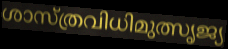
ശാസ്ത്രവിധിമുത്സൃജ്യ